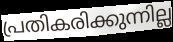
പ്രതികരിക്കുന്നില്ല